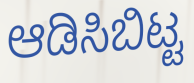
ಆಡಿಸಿಬಿಟ್ಟ